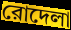
রোদেলা